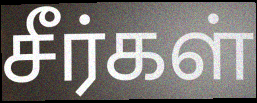
சீர்கள்